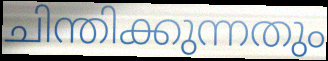
ചിന്തിക്കുന്നതും